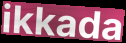
ikkada